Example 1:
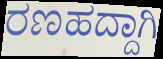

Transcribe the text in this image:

ರಣಹದ್ದಾಗಿ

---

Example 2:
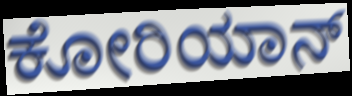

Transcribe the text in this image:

ಕೋರಿಯಾನ್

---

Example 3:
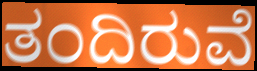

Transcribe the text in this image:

ತಂದಿರುವೆ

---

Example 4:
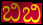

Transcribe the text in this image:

ಬಿಬಿ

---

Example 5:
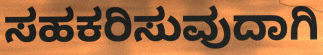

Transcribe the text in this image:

ಸಹಕರಿಸುವುದಾಗಿ